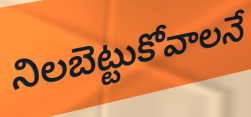
నిలబెట్టుకోవాలనే